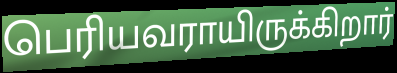
பெரியவராயிருக்கிறார்